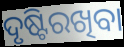
ଦୃଷ୍ଟିରଖିବା